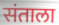
संताला